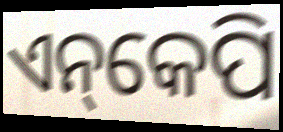
ଏନ୍‌କେପି